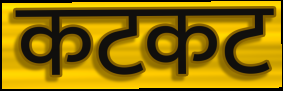
कटकट